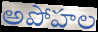
అపోహల